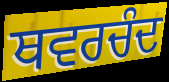
ਥਵਰਚੰਦ